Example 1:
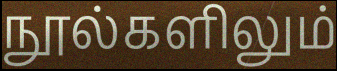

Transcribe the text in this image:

நூல்களிலும்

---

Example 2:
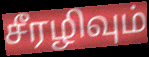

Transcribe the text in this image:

சீரழிவும்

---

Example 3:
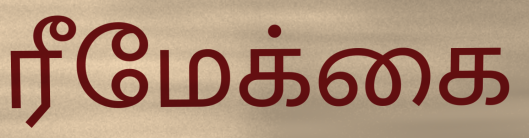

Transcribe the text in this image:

ரீமேக்கை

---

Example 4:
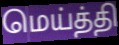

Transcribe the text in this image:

மெய்த்தி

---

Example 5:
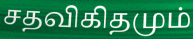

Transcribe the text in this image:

சதவிகிதமும்